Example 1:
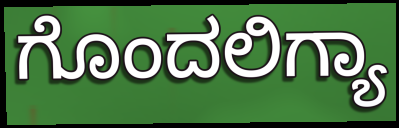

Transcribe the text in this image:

ಗೊಂದಲಿಗ್ಯಾ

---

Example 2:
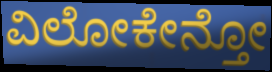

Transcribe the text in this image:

ವಿಲೋಕೇನ್ತೋ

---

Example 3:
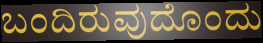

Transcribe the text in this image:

ಬಂದಿರುವುದೊಂದು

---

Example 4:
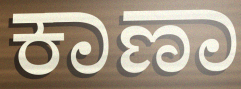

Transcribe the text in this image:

ಕಾಣಾ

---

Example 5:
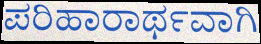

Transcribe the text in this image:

ಪರಿಹಾರಾರ್ಥವಾಗಿ